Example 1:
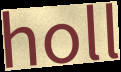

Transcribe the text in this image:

holl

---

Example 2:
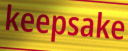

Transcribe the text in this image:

keepsake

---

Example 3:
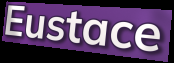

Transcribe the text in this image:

Eustace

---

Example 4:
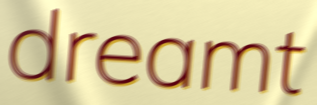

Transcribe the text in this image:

dreamt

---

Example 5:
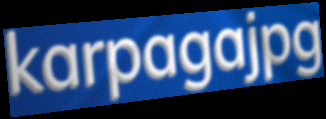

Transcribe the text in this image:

karpagajpg